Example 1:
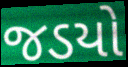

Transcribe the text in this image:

જડયો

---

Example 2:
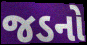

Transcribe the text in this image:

જડનો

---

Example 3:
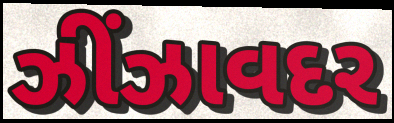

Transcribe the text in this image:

ઝીંઝાવદર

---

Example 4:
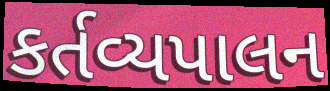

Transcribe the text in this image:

કર્તવ્યપાલન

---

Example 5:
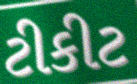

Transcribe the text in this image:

ટીકીટ